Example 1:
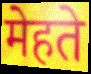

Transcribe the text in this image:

मेहते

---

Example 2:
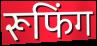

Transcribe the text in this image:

रूफिंग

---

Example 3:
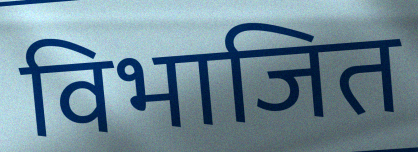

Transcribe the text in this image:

विभाजित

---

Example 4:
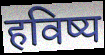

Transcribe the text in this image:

हविष्य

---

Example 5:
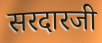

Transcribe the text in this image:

सरदारजी